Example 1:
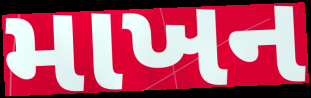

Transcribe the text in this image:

માખન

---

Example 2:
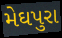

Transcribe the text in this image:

મેઘપુરા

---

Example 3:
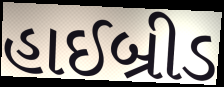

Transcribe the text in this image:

હાઈબ્રીડ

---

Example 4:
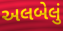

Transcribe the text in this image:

અલબેલું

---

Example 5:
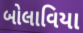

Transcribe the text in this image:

બોલાવિયા